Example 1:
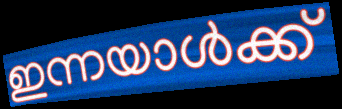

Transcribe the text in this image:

ഇന്നയാൾക്ക്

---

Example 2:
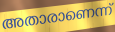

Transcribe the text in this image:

അതാരാണെന്ന്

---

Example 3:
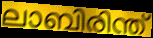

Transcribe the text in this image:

ലാബിരിന്ത്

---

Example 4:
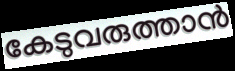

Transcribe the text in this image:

കേടുവരുത്താൻ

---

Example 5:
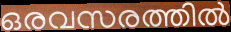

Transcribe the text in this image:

ഒരവസരത്തിൽ